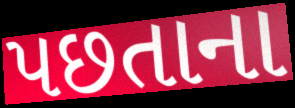
પછતાના